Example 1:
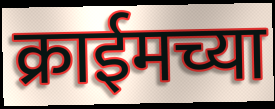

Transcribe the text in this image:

क्राईमच्या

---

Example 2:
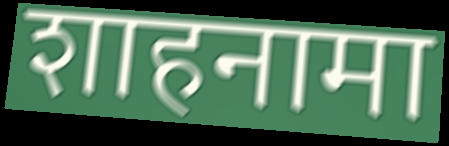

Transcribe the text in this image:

शाहनामा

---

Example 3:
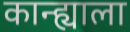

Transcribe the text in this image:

कान्ह्याला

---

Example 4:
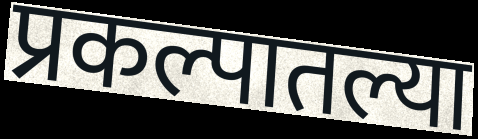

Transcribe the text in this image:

प्रकल्पातल्या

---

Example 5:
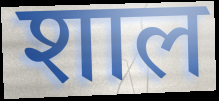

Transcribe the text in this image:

शाल